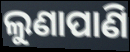
ଲୁଣାପାଣି